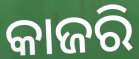
କାଜରି